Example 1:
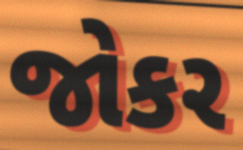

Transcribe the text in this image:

જોકર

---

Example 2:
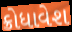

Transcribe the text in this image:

ક્રોધાવેશ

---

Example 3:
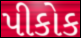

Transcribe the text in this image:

પીકોક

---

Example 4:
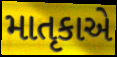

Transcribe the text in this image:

માતૃકાએ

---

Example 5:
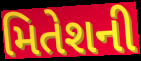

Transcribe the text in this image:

મિતેશની